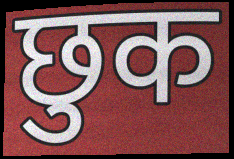
छुक